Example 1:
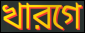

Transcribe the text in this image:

খারগে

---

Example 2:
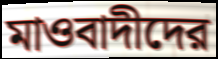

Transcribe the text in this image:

মাওবাদীদের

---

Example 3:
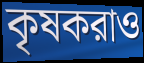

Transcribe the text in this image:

কৃষকরাও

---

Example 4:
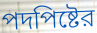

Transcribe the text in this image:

পদপিষ্টের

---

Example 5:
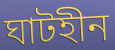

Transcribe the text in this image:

ঘাটহীন